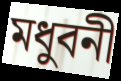
মধুবনী